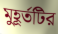
মুহূর্তটির